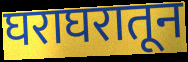
घराघरातून